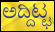
ಅದ್ದಿಟ್ಟ